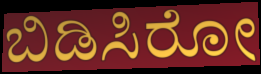
ಬಿಡಿಸಿರೋ